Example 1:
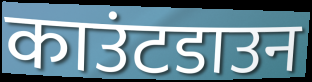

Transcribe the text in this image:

काउंटडाउन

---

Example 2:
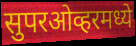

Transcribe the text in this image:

सुपरओव्हरमध्ये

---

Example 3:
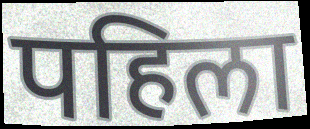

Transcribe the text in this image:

पहिला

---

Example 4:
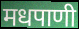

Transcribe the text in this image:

मधपाणी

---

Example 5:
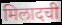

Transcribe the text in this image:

मिलादची